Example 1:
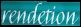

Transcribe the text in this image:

rendetion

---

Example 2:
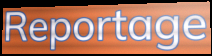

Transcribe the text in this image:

Reportage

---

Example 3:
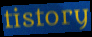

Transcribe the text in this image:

tistory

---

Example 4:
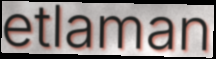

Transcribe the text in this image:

etlaman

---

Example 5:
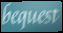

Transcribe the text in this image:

bequest